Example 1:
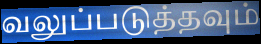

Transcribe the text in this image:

வலுப்படுத்தவும்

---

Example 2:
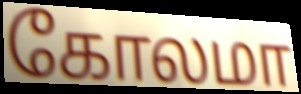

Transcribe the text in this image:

கோலமா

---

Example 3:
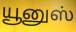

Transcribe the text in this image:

யூனுஸ்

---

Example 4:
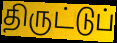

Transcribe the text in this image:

திருட்டுப்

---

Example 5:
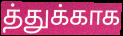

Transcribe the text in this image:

த்துக்காக